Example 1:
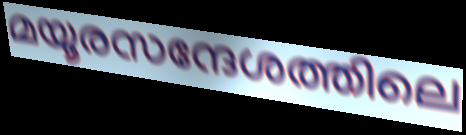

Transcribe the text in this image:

മയൂരസന്ദേശത്തിലെ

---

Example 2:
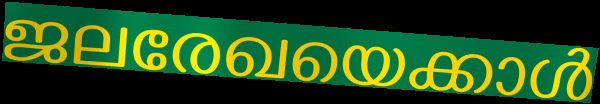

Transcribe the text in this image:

ജലരേഖയെക്കാൾ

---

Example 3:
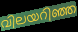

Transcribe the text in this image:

വിലയറിഞ്ഞ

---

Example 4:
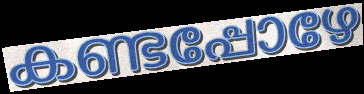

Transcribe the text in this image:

കണ്ടപ്പോഴേ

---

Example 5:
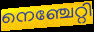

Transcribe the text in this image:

നെഞ്ചേറ്റി